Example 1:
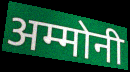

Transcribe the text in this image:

अम्मोनी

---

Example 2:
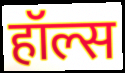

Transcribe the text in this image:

हॉल्स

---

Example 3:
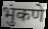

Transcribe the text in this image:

भुंकणे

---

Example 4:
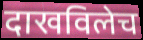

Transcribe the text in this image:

दाखविलेच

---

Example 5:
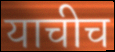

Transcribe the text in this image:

याचीच